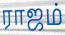
ராஜம்